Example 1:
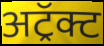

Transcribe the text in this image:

अट्रॅक्ट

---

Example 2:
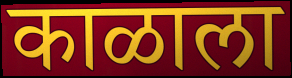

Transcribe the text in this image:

काळाला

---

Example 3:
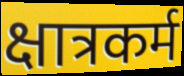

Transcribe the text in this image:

क्षात्रकर्म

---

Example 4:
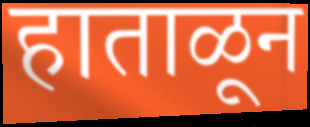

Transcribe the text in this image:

हाताळून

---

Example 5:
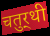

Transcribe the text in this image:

चतुर्थी